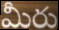
మీరు